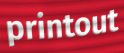
printout